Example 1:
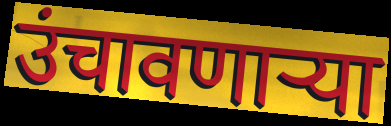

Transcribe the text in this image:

उंचावणाऱ्या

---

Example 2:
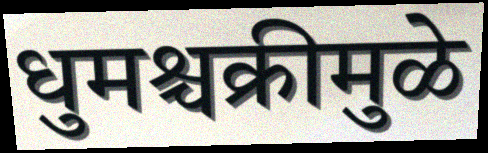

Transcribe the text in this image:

धुमश्चक्रीमुळे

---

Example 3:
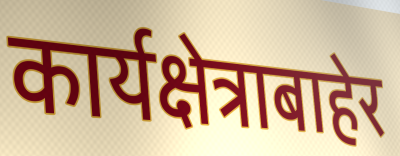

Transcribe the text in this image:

कार्यक्षेत्राबाहेर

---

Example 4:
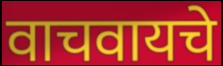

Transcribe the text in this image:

वाचवायचे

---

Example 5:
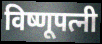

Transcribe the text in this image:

विष्णूपत्नी